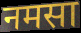
नमसा